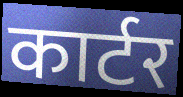
कार्टर